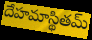
దేహమాస్థితమ్